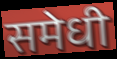
समेधी